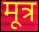
मूत्र